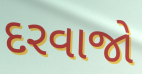
દરવાજો